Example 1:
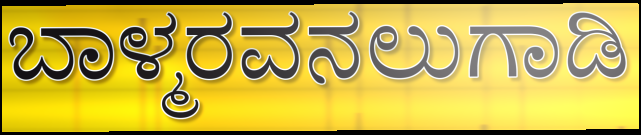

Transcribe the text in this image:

ಬಾಳ್ಮರವನಲುಗಾಡಿ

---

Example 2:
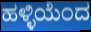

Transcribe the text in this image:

ಹಳ್ಳಿಯೆಂದ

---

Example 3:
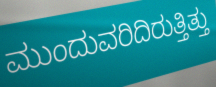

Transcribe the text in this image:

ಮುಂದುವರಿದಿರುತ್ತಿತ್ತು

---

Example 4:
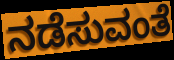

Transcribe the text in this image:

ನಡೆಸುವಂತೆ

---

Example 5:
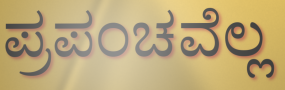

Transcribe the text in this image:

ಪ್ರಪಂಚವೆಲ್ಲ